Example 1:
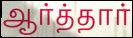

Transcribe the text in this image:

ஆர்த்தார்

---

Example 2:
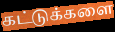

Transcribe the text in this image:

கட்டுக்களை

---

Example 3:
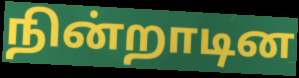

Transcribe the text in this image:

நின்றாடின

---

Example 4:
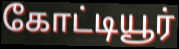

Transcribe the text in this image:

கோட்டியூர்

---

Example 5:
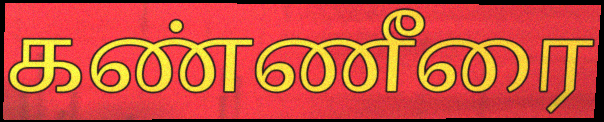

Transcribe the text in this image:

கண்ணீரை